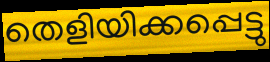
തെളിയിക്കപ്പെട്ടു